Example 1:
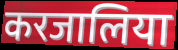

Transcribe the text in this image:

करजालिया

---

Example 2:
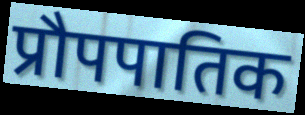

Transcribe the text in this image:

प्रौपपातिक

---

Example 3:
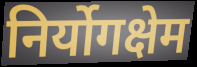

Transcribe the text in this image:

निर्योगक्षेम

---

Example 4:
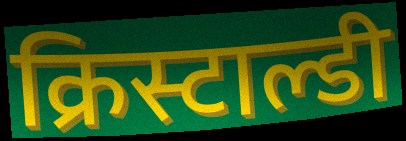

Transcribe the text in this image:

क्रिस्टाल्डी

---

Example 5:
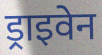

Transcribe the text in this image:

ड्राइवेन